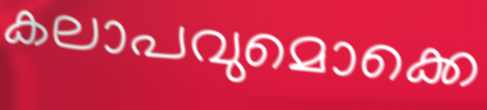
കലാപവുമൊക്കെ